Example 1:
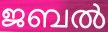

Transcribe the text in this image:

ജബൽ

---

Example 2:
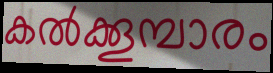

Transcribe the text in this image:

കൽക്കൂമ്പാരം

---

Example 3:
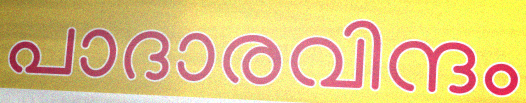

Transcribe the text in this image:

പാദാരവിന്ദം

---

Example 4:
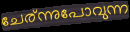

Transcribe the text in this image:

ചേര്ന്നുപോവുന്ന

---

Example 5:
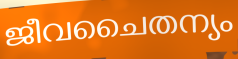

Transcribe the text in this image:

ജീവചൈതന്യം